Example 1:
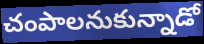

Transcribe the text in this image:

చంపాలనుకున్నాడో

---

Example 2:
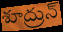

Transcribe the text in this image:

శూద్రున్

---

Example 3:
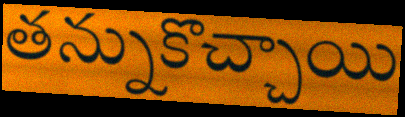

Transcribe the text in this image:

తన్నుకొచ్చాయి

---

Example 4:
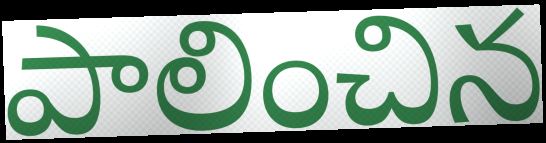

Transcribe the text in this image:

పాలించిన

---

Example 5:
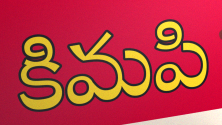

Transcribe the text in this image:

కిమపి